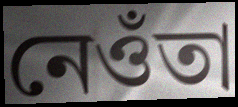
নেওঁতা